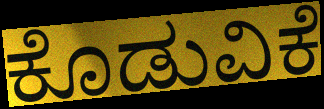
ಕೊಡುವಿಕೆ